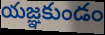
యజ్ఞకుండం